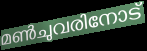
മൺചുവരിനോട്